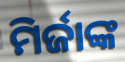
ମିର୍ଜାଙ୍କ